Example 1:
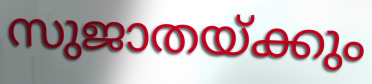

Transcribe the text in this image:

സുജാതയ്ക്കും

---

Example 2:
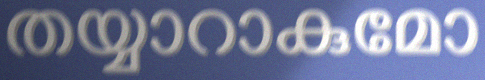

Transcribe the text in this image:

തയ്യാറാകുമോ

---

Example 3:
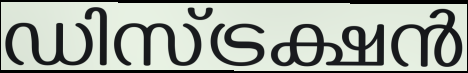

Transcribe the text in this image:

ഡിസ്ട്രക്ഷൻ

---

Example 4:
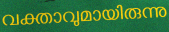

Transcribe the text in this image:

വക്താവുമായിരുന്നു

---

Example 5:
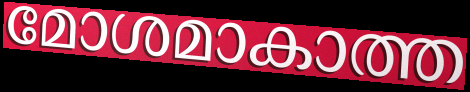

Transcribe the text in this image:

മോശമാകാത്ത